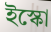
ইস্কো